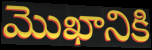
మొఖానికి